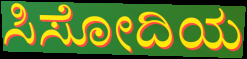
ಸಿಸೋದಿಯ